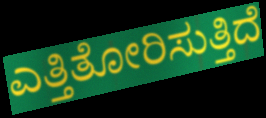
ಎತ್ತಿತೋರಿಸುತ್ತಿದೆ